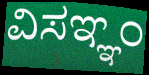
ವಿಸಞ್ಞಂ